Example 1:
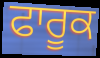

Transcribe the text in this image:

ਫਾਰੂਕ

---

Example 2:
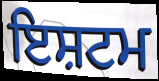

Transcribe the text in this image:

ਇਸ਼ਟਮ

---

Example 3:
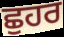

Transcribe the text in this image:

ਛੁਹਰ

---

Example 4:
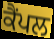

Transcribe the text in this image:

ਕੈਂਪਲ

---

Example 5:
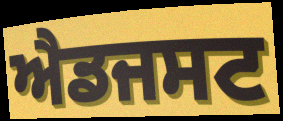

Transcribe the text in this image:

ਐਡਜਸਟ